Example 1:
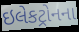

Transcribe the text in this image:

ઇલેકટ્રોનના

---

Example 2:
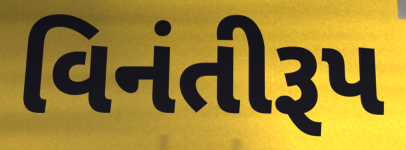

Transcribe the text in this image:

વિનંતીરૂપ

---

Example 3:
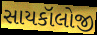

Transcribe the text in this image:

સાયકૉલોજી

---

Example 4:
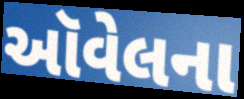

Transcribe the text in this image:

ઑવેલના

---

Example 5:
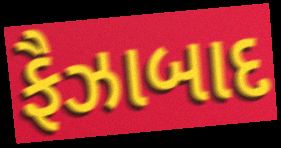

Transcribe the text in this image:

ફૈઝાબાદ